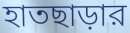
হাতছাড়ার